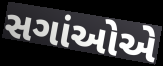
સગાંઓએ